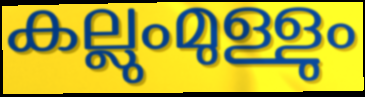
കല്ലുംമുള്ളും